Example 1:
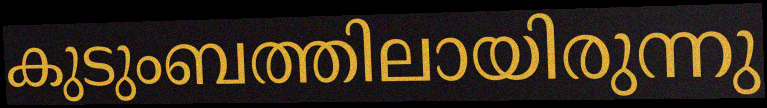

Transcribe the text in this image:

കുടുംബത്തിലായിരുന്നു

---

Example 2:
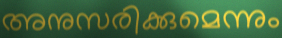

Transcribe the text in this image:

അനുസരിക്കുമെന്നും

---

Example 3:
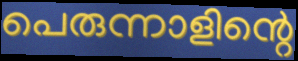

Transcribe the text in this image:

പെരുന്നാളിന്റെ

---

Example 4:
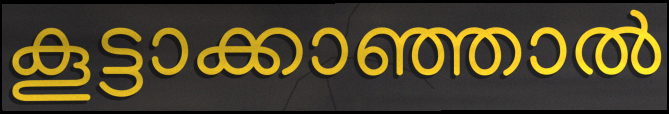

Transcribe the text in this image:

കൂട്ടാക്കാഞ്ഞാൽ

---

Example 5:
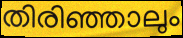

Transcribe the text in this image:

തിരിഞ്ഞാലും